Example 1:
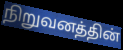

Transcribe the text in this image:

நிறுவனத்தின்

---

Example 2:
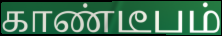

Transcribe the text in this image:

காண்டீபம்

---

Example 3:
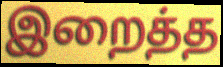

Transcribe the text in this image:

இறைத்த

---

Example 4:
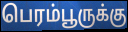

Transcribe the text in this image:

பெரம்பூருக்கு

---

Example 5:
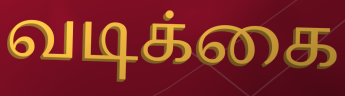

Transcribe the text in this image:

வடிக்கை